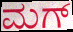
ಮಗ್